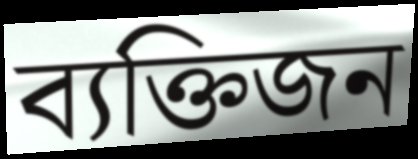
ব্যক্তিজন